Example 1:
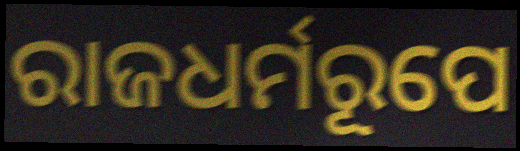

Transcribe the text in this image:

ରାଜଧର୍ମରୂପେ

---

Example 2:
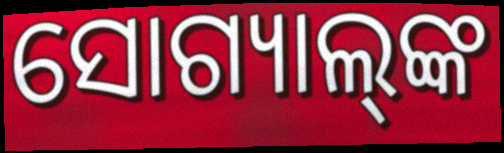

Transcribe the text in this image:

ସୋଗ୍ୟାଲ୍‌ଙ୍କ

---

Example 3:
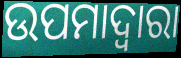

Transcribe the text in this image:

ଉପମାଦ୍ୱାରା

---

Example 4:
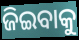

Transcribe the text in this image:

ଜିଇବାକୁ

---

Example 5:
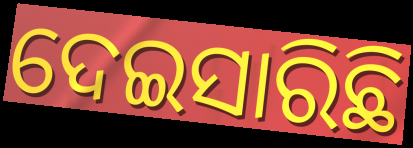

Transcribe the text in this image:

ଦେଇସାରିଛି